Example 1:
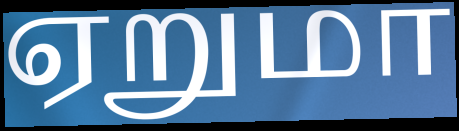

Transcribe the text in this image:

ஏறுமா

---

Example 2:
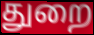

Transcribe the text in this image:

துறை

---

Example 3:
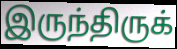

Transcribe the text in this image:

இருந்திருக்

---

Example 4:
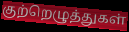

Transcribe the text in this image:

குற்றெழுத்துகள்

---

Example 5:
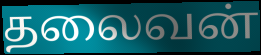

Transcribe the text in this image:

தலைவன்